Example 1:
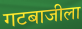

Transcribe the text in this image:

गटबाजीला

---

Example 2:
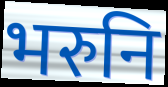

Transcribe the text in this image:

भरुनि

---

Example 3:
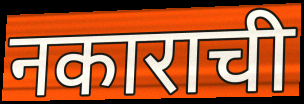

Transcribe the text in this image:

नकाराची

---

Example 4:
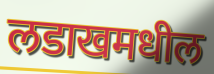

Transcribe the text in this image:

लडाखमधील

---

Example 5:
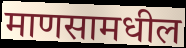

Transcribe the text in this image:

माणसामधील